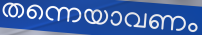
തന്നെയാവണം